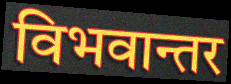
विभवान्तर